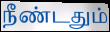
நீண்டதும்